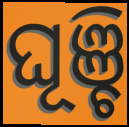
ଘୂଞ୍ଚି